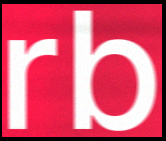
rb